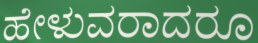
ಹೇಳುವರಾದರೂ